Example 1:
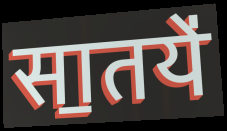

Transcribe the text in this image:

सा॒तये॑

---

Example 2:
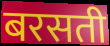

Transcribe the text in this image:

बरसती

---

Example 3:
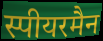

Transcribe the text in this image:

स्पीयरमैन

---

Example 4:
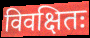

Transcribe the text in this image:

विवक्षितः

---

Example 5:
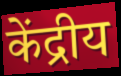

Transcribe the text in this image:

केंद्रीय